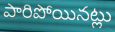
పారిపోయినట్లు